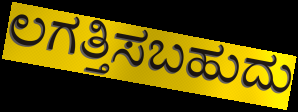
ಲಗತ್ತಿಸಬಹುದು